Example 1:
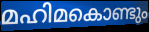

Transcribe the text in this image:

മഹിമകൊണ്ടും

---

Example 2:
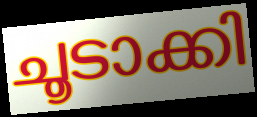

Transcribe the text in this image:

ചൂടാക്കി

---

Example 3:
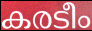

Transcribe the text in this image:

കരടീം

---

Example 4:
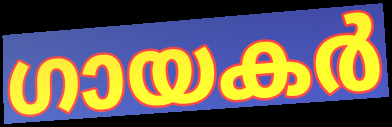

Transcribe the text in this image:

ഗായകർ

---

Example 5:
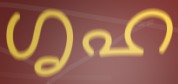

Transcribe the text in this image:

ഗൃഹ